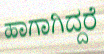
ಹಾಗಾಗಿದ್ದರೆ